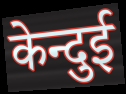
केन्दुई